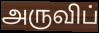
அருவிப்